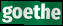
goethe